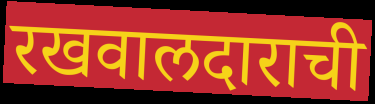
रखवालदाराची